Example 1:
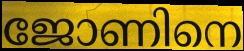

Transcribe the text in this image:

ജോണിനെ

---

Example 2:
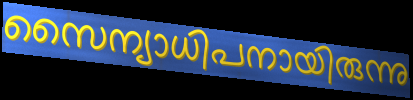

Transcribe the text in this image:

സൈന്യാധിപനായിരുന്നു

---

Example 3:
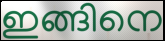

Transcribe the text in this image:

ഇങ്ങിനെ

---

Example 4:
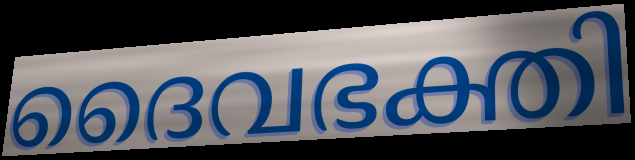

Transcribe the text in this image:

ദൈവഭക്തി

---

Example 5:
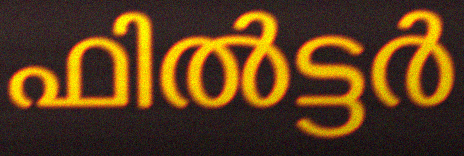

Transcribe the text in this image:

ഫിൽട്ടർ